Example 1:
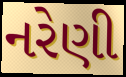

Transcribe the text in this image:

નરેણી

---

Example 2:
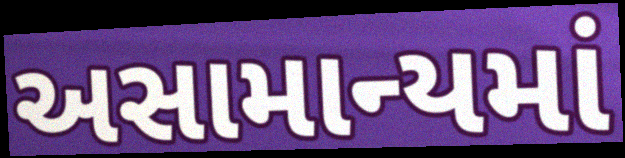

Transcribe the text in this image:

અસામાન્યમાં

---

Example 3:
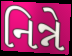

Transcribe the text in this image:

નિન્ને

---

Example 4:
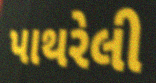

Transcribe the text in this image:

પાથરેલી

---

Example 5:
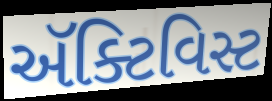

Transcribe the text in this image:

ઍક્ટિવિસ્ટ